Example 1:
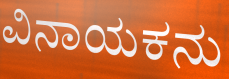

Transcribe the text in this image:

ವಿನಾಯಕನು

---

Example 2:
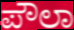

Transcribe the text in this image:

ಪೌಲಾ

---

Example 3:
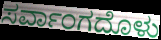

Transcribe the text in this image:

ಸರ್ವಾಂಗದೊಳು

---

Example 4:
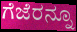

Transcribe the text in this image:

ಗೆಜೆರನ್ನೂ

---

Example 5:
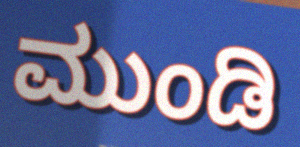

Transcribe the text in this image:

ಮುಂಡಿ